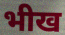
भीख